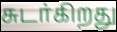
சுடர்கிறது